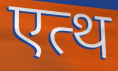
एत्थ